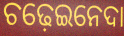
ଚଢ଼େଇନେଦା